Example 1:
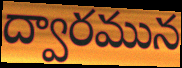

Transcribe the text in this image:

ద్వారమున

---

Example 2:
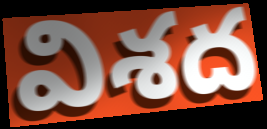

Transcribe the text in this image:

విశద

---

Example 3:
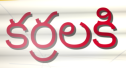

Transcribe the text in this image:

కర్రలకి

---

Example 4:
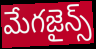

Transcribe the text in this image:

మేగజైన్స్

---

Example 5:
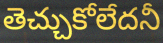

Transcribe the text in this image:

తెచ్చుకోలేదనీ